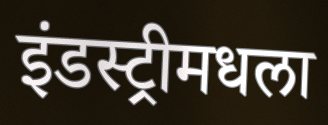
इंडस्ट्रीमधला